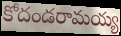
కోదండరామయ్య